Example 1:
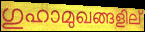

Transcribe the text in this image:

ഗുഹാമുഖങ്ങളില്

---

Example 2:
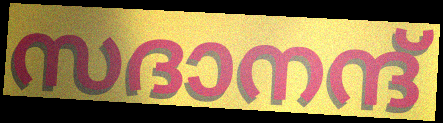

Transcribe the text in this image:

സദാനന്ദ്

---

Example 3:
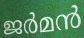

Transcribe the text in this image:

ജർമൻ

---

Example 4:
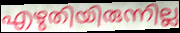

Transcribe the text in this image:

എഴുതിയിരുന്നില്ല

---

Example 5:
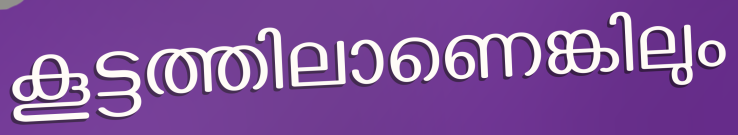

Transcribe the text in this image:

കൂട്ടത്തിലാണെങ്കിലും